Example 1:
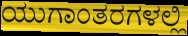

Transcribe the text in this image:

ಯುಗಾಂತರಗಳಲ್ಲಿ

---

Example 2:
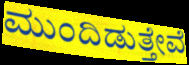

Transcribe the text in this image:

ಮುಂದಿಡುತ್ತೇವೆ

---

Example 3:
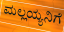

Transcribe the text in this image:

ಮಲ್ಲಯ್ಯನಿಗೆ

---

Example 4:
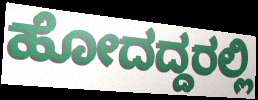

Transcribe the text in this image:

ಹೋದದ್ದರಲ್ಲಿ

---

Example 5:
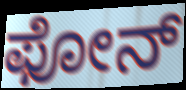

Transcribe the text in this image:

ಫೋನ್